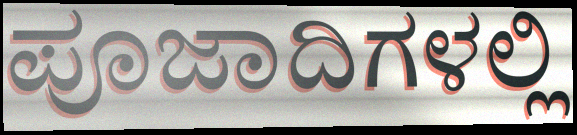
ಪೂಜಾದಿಗಳಲ್ಲಿ